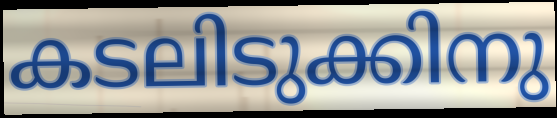
കടലിടുക്കിനു